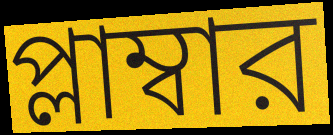
প্লাম্বার